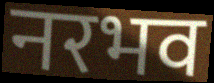
नरभव